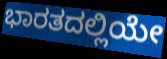
ಭಾರತದಲ್ಲಿಯೇ